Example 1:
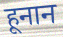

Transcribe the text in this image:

हूनान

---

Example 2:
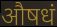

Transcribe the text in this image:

औषधं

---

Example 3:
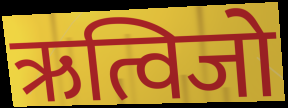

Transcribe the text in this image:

ऋत्विजो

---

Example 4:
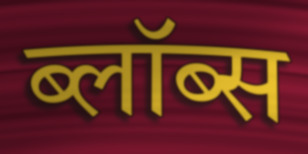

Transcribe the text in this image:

ब्लॉब्स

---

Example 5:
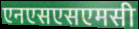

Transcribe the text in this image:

एनएसएसएमसी